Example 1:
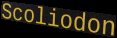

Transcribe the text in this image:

Scoliodon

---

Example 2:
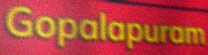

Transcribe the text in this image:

Gopalapuram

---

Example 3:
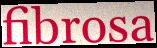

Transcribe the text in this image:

fibrosa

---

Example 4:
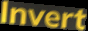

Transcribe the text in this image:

Invert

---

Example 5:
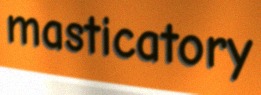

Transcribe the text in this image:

masticatory